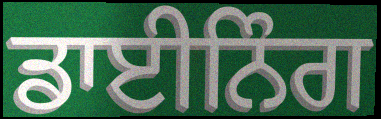
ਡਾਈਨਿੰਗ